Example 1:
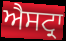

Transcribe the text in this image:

ਐਸਟ੍ਰਾ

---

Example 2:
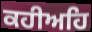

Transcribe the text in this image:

ਕਹੀਅਹਿ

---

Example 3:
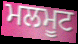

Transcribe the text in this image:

ਮਲਮੂਟ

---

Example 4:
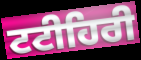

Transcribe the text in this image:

ਟਟੀਹਿਰੀ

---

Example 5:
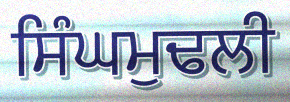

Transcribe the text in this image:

ਸਿੰਘਮੁਢਲੀ